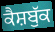
ਕੈਸ਼ਬੁੱਕ